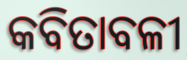
କବିତାବଳୀ